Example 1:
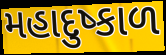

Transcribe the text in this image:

મહાદુષ્કાળ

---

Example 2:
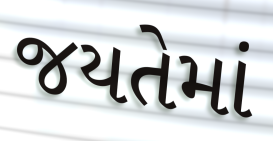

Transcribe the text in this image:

જયતેમાં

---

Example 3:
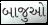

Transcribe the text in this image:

બાજુઓ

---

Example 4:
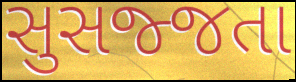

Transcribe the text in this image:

સુસજ્જતા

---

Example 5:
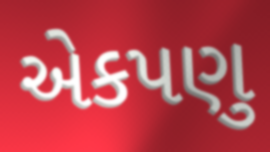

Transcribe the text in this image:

એકપણુ